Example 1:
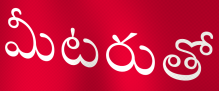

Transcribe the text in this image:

మీటరుతో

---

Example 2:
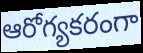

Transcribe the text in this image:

ఆరోగ్యకరంగా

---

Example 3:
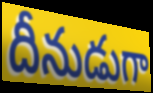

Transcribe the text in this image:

దీనుడుగా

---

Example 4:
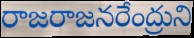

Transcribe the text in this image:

రాజరాజనరేంద్రుని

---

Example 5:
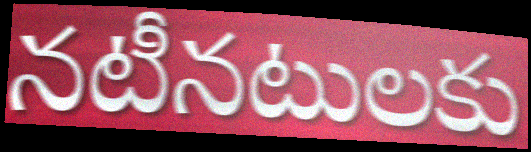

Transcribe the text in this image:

నటీనటులకు